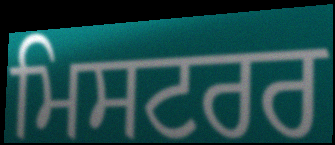
ਮਿਸਟਰਰ